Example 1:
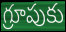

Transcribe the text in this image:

గ్రూపుకు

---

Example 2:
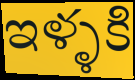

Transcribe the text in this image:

ఇళ్ళకి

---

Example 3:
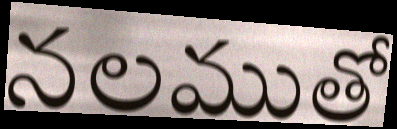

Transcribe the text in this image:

నలముతో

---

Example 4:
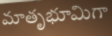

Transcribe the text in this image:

మాతృభూమిగా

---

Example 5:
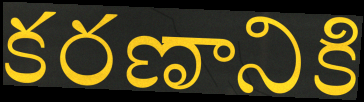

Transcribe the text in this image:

కరణానికి